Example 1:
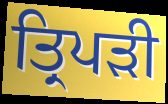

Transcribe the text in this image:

ਤ੍ਰਿਪਡ਼ੀ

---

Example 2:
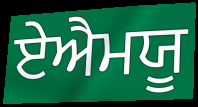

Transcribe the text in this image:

ਏਐਮਯੂ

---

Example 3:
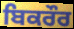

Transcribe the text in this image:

ਬਿਕਰੌਰ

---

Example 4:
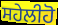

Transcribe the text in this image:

ਸਹੇਲੀਹੋ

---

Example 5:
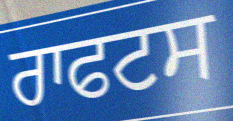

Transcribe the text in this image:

ਰਾਫਟਸ